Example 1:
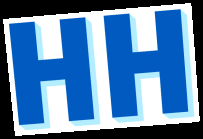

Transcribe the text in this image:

HH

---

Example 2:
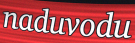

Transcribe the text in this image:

naduvodu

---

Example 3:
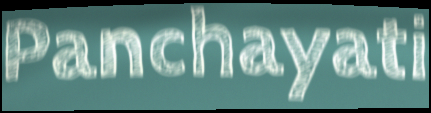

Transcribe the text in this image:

Panchayati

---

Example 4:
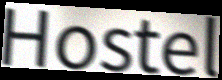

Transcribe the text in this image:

Hostel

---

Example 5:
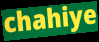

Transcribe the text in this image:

chahiye